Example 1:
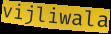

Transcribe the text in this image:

vijliwala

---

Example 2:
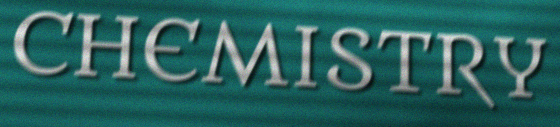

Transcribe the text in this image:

CHEMISTRY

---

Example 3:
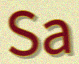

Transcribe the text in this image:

Sa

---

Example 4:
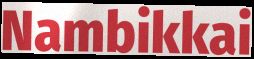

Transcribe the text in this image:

Nambikkai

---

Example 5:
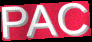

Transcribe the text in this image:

PAC